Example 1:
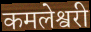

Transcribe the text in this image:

कमलेश्वरी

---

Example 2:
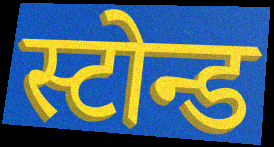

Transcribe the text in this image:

स्टोन्ड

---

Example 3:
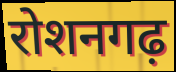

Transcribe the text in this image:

रोशनगढ़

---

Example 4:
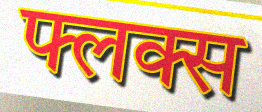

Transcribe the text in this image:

फ्लक्स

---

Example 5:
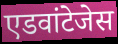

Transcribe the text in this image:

एडवांटेजेस